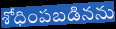
శోధింపబడినను